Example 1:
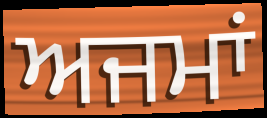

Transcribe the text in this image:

ਅਜਮਾਂ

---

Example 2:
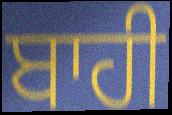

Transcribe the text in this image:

ਬਾਹੀ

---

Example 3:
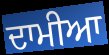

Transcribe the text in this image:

ਦਾਮੀਆ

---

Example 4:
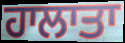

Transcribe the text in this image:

ਹਾਲਾਤਾ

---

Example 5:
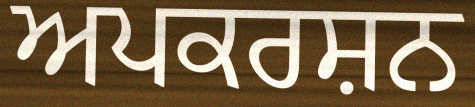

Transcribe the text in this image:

ਅਪਕਰਸ਼ਨ